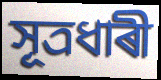
সূত্ৰধাৰী